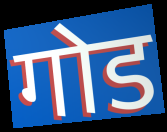
गोड